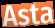
Asta